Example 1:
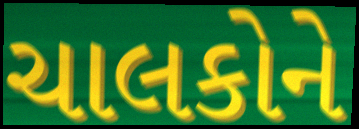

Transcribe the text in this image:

ચાલકોને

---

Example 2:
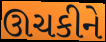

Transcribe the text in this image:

ઊચકીને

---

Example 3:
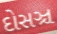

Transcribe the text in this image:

દોસઞ્ચ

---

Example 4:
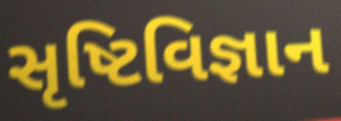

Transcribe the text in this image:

સૃષ્ટિવિજ્ઞાન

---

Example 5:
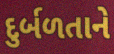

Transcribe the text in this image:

દુર્બળતાને